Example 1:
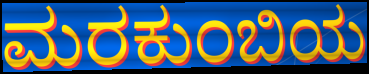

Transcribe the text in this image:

ಮರಕುಂಬಿಯ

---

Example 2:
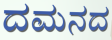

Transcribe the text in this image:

ದಮನದ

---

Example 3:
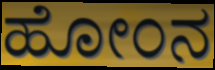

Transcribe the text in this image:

ಹೋಂನ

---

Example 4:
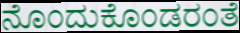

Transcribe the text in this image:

ನೊಂದುಕೊಂಡರಂತೆ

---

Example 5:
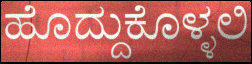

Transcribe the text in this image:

ಹೊದ್ದುಕೊಳ್ಳಲಿ